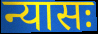
न्यासः